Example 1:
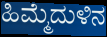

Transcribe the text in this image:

ಹಿಮ್ಮೆದುಳಿನ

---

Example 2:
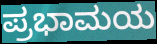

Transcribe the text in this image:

ಪ್ರಭಾಮಯ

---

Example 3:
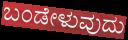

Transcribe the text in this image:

ಬಂಡೇಳುವುದು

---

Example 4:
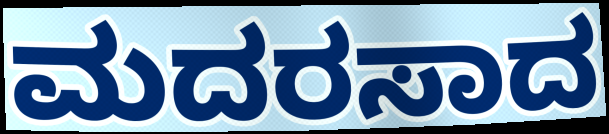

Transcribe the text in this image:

ಮದರಸಾದ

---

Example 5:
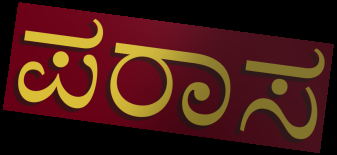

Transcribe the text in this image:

ಪರಾಸ